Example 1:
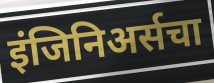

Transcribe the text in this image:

इंजिनिअर्सचा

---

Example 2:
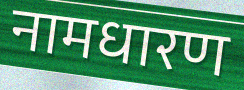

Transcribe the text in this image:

नामधारण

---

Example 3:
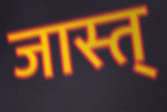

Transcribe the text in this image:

जास्त्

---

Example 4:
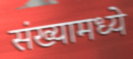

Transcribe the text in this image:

संख्यामध्ये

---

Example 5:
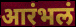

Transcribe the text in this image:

आरंभलं